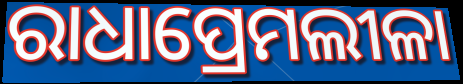
ରାଧାପ୍ରେମଲୀଳା